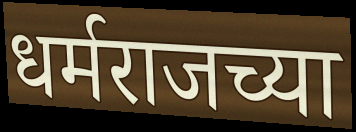
धर्मराजच्या